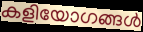
കളിയോഗങ്ങൾ